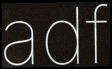
adf